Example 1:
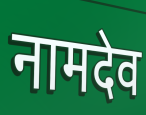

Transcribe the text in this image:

नामदेव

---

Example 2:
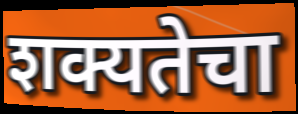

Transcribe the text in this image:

शक्यतेचा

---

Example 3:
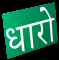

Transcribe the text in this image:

धारो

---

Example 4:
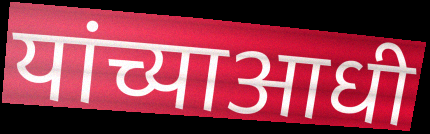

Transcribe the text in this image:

यांच्याआधी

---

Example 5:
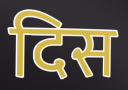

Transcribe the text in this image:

दिस